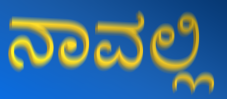
ನಾವಲ್ಲಿ